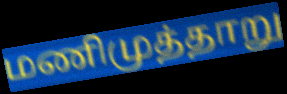
மணிமுத்தாறு